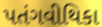
પતંગવીથિકા